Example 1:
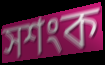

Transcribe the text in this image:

সশংক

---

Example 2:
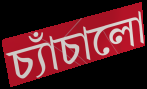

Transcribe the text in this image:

চ্যাঁচালো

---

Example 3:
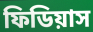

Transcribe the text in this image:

ফিডিয়াস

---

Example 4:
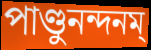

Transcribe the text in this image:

পাণ্ডুনন্দনম্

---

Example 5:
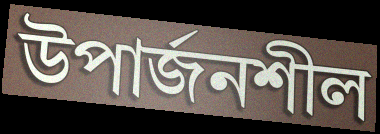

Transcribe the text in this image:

উপার্জনশীল